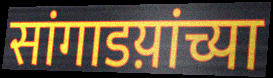
सांगाडय़ांच्या